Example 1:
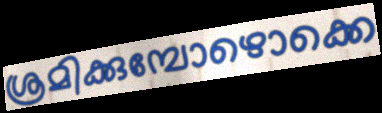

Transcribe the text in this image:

ശ്രമിക്കുമ്പോഴൊക്കെ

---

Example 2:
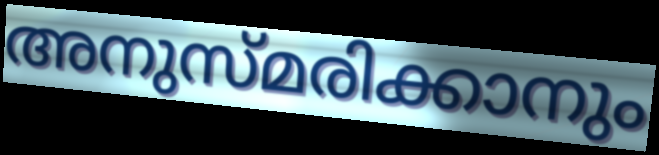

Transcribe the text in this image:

അനുസ്മരിക്കാനും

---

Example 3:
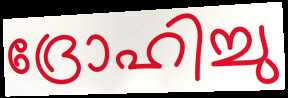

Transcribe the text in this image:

ദ്രോഹിച്ചു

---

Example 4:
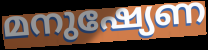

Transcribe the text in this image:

മനുഷ്യേണ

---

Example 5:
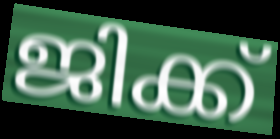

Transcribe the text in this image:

ജിക്ക്